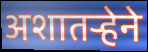
अशातऱ्हेने